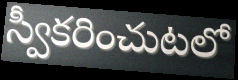
స్వీకరించుటలో